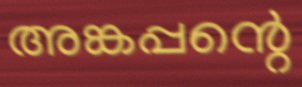
അങ്കപ്പന്റെ